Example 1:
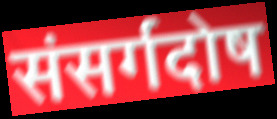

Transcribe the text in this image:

संसर्गदोष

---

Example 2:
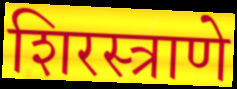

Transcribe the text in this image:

शिरस्त्राणे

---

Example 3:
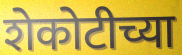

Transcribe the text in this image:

शेकोटीच्या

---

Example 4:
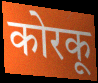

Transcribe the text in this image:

कोरकू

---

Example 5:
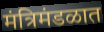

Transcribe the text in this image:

मंत्रिमंडळात